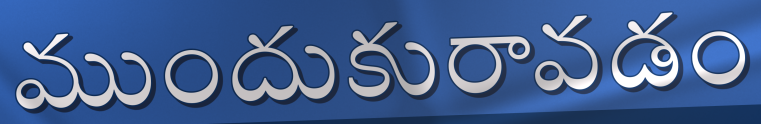
ముందుకురావడం